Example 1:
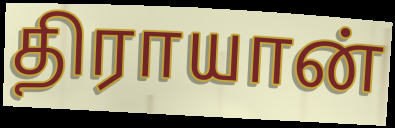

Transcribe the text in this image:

திராயான்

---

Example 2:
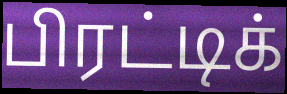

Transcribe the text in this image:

பிரட்டிக்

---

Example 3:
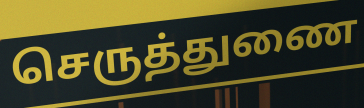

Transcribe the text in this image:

செருத்துணை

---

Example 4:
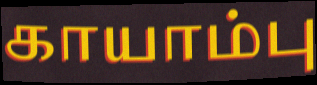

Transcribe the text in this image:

காயாம்பு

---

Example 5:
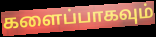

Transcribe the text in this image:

களைப்பாகவும்